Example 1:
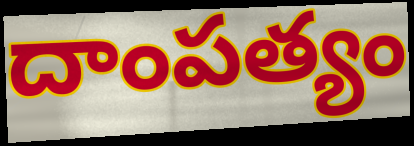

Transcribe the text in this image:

దాంపత్యం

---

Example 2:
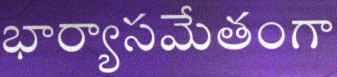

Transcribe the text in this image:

భార్యాసమేతంగా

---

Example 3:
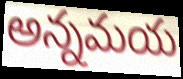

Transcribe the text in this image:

అన్నమయ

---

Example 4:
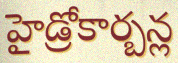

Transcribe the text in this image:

హైడ్రోకార్బన్ల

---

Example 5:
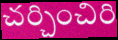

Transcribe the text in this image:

చర్చించిరి